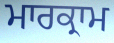
ਮਾਰਕ੍ਰਾਮ